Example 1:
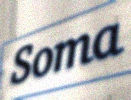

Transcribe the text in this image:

Soma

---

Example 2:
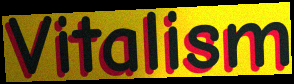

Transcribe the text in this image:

Vitalism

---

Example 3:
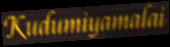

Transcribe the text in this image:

Kudumiyamalai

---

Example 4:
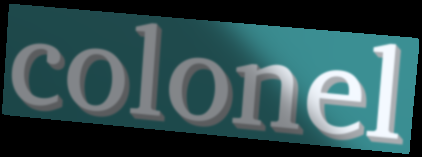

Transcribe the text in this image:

colonel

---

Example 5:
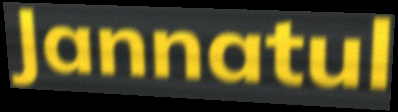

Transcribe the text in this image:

Jannatul